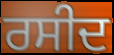
ਰਸੀਦ